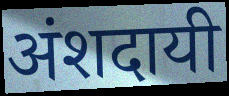
अंशदायी